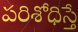
పరిశోధిస్తే